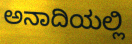
ಅನಾದಿಯಲ್ಲಿ